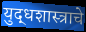
युद्धशास्त्राचे